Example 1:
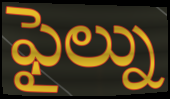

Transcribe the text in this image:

ఫైల్ను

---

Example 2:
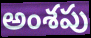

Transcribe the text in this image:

అంశపు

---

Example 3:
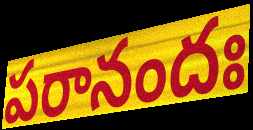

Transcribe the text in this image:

పరానందః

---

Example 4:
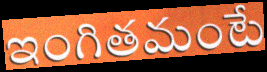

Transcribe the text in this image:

ఇంగితమంటే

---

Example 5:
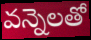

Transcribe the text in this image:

వన్నెలతో